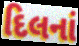
દિલનાં